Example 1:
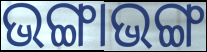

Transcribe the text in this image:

ଭଙ୍ଗାଭଙ୍ଗ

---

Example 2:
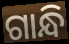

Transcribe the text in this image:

ଗାନ୍ଧି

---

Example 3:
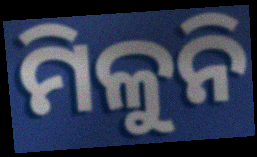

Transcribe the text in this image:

ମିଳୁନି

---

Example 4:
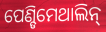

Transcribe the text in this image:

ପେଣ୍ଡିମେଥାଲିନ୍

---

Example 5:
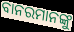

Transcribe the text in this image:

ବାନରମାନଙ୍କୁ